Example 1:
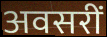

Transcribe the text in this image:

अवसरीं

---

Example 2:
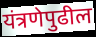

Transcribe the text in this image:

यंत्रणेपुढील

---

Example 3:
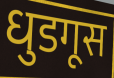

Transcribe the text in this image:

धुडगूस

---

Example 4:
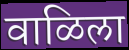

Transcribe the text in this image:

वाळिला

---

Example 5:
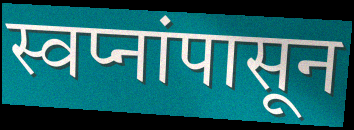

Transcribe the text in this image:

स्वप्नांपासून